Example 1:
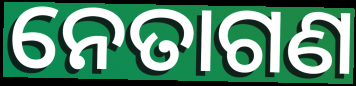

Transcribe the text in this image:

ନେତାଗଣ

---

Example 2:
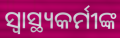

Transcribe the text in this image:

ସ୍ବାସ୍ଥ୍ୟକର୍ମୀଙ୍କ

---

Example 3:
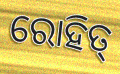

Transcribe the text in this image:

ରୋହିତ୍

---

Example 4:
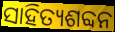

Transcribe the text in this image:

ସାହିତ୍ୟଶବ୍ଦନ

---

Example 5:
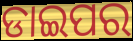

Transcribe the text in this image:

ଡାଇପର